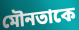
মৌনতাকে